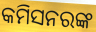
କମିସନରଙ୍କ